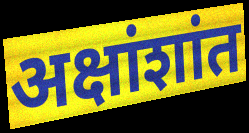
अक्षांशांत